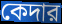
কেদার